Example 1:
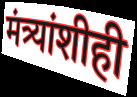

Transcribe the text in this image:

मंत्र्यांशीही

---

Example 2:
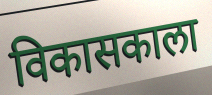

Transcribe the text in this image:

विकासकाला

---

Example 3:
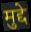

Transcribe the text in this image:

मुद्दे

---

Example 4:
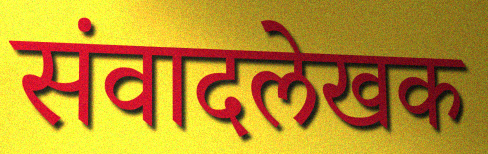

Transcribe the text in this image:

संवादलेखक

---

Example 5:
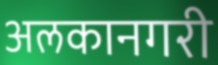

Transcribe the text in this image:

अलकानगरी